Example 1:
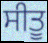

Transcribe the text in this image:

ਸੀਤੂ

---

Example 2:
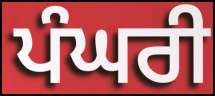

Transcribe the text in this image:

ਪੰਘਰੀ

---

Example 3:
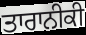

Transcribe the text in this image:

ਤਾਰਾਨੀਕੀ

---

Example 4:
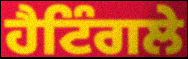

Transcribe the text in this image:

ਹੈਟਿੰਗਲੇ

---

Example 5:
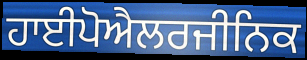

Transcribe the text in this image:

ਹਾਈਪੋਐਲਰਜੀਨਿਕ